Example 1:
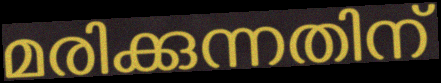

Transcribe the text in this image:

മരിക്കുന്നതിന്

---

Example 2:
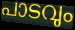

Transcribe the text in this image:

പാടവും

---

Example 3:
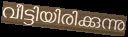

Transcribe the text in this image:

വീട്ടിയിരിക്കുന്നു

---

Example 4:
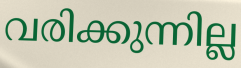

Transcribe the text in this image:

വരിക്കുന്നില്ല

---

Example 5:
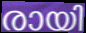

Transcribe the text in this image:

രായി